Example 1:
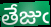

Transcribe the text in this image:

తేజుఁ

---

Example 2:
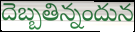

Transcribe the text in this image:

దెబ్బతిన్నందున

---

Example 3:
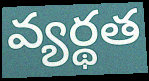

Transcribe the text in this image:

వ్యర్థత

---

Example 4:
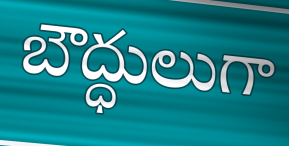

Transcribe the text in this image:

బౌద్ధులుగా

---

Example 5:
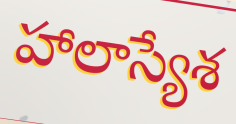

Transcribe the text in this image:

హాలాస్యేశ